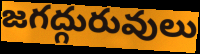
జగద్గురువులు